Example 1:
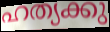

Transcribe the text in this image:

ഹത്യക്കു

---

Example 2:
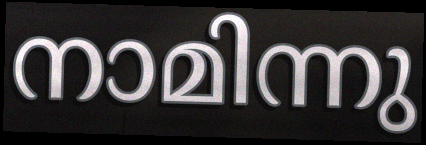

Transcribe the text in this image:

നാമിന്നു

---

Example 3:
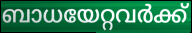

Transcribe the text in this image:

ബാധയേറ്റവർക്ക്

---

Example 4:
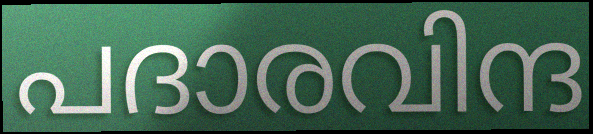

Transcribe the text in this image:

പദാരവിന്ദ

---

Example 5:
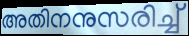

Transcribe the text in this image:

അതിനനുസരിച്ച്